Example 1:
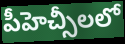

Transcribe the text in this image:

పీహెచ్సీలలో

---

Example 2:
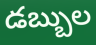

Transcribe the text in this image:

డబ్బుల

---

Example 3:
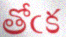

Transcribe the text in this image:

తోఁక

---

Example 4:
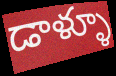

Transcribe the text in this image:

డాళ్ళూ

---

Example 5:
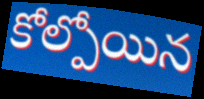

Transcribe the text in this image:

కోల్పోయిన